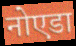
नोएडा